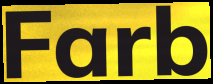
Farb